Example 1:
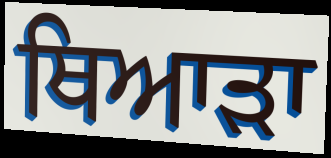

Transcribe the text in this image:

ਥਿਆੜਾ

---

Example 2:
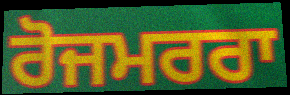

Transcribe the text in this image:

ਰੋਜਮਰਰਾ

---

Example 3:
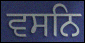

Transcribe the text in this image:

ਵਸਨਿ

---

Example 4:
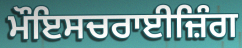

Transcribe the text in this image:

ਮੌਇਸਚਰਾਈਜ਼ਿੰਗ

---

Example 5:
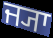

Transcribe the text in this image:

ਜ੍ਯਾ